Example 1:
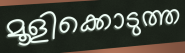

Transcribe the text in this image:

മൂളിക്കൊടുത്ത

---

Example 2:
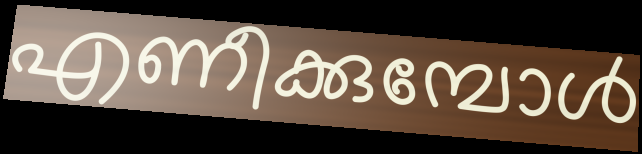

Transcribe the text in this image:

എണീക്കുമ്പോൾ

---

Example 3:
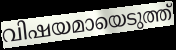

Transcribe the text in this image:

വിഷയമായെടുത്ത്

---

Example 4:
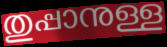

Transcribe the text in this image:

തുപ്പാനുള്ള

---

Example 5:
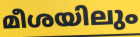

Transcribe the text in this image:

മീശയിലും